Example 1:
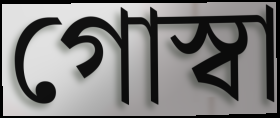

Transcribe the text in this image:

গোস্বা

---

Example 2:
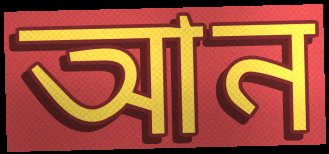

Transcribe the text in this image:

আন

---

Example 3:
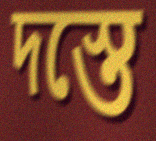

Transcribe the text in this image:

দস্তে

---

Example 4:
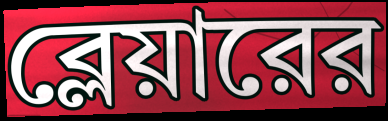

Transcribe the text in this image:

ব্লেয়ারের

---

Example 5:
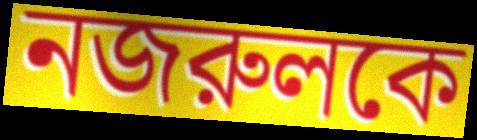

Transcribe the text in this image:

নজরুলকে